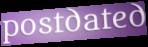
postdated